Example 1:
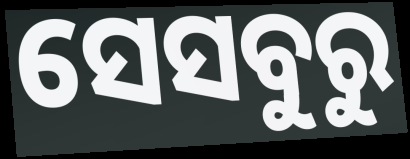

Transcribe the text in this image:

ସେସବୁରୁ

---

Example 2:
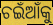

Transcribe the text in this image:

ଚଇଁଆଁକୁ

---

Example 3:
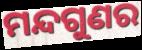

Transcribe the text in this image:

ମନ୍ଦଗୁଣର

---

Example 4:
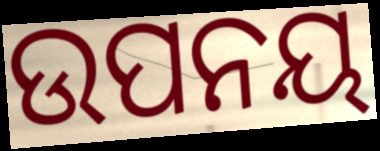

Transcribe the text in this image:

ଉପନୟ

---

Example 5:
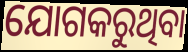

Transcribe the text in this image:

ଯୋଗକରୁଥିବା